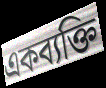
একব্যক্তি